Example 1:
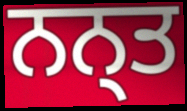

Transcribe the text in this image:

ਨਨ੍ਤ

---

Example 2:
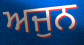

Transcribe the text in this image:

ਅਜੁਨ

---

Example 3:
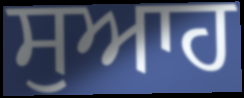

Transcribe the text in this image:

ਸੁਆਹ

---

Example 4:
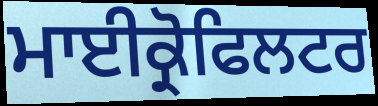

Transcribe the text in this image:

ਮਾਈਕ੍ਰੋਫਿਲਟਰ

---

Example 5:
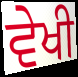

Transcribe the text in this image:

ਵੇਖੀ